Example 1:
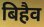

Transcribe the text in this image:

बिहैव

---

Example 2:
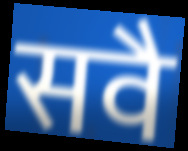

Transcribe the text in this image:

सवै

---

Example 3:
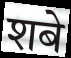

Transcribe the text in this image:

शबे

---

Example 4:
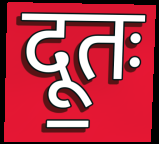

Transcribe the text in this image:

दू॒तः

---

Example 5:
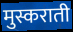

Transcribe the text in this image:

मुस्कराती